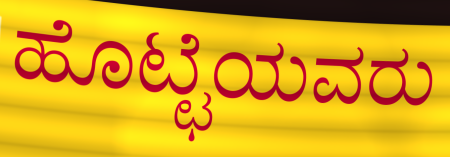
ಹೊಟ್ಟೆಯವರು